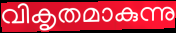
വികൃതമാകുന്നു